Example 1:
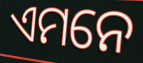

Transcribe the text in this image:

ଏମନେ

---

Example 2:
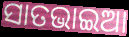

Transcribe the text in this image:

ସାତଭାଇଆ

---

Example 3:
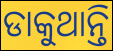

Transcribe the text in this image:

ଡାକୁଥାନ୍ତି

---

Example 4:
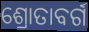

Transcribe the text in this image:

ଶ୍ରୋତାବର୍ଗ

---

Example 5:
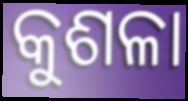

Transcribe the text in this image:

କୁଶଳା